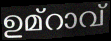
ഉമ്റാവ്